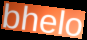
bhelo